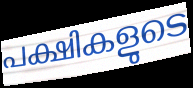
പക്ഷികളുടെ